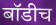
बॉडीच